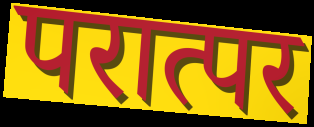
परात्पर